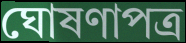
ঘোষণাপত্র